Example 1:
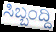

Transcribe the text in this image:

ಸಿಬ್ಬಂದ್ದಿ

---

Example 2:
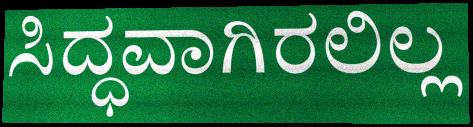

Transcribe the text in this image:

ಸಿದ್ಧವಾಗಿರಲಿಲ್ಲ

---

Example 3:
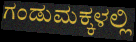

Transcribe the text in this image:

ಗಂಡುಮಕ್ಕಳಲ್ಲಿ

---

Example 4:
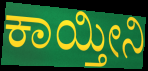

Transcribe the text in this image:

ಕಾಯ್ತೀನಿ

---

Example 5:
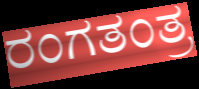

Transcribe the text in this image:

ರಂಗತಂತ್ರ